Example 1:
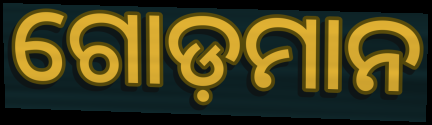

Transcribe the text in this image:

ଗୋଡ଼ମାନ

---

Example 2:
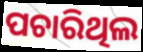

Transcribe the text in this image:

ପଚାରିଥିଲ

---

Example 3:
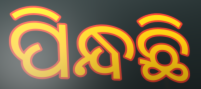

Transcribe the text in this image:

ପିନ୍ଧଛି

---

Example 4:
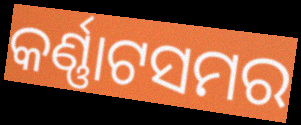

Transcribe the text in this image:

କର୍ଣ୍ଣାଟସମର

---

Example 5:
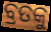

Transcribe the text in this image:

ବ୍ରତକୁ